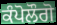
ਕੰਪੋਲੌਗੋ